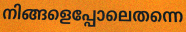
നിങ്ങളെപ്പോലെതന്നെ